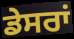
ਡੇਸਰਾਂ